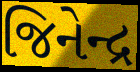
જિનેન્દ્ર